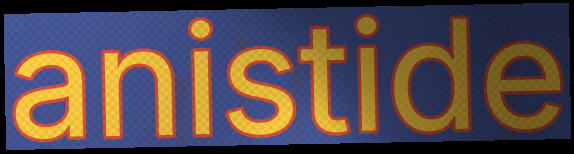
anistide